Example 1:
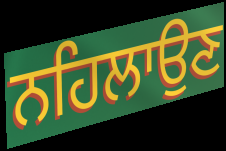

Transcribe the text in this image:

ਨਹਿਲਾਉਣ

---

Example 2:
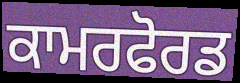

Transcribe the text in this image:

ਕਾਮਰਫੋਰਡ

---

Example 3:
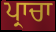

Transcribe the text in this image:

ਪ੍ਰਾਚਾ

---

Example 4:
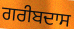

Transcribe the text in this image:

ਗਰੀਬਦਾਸ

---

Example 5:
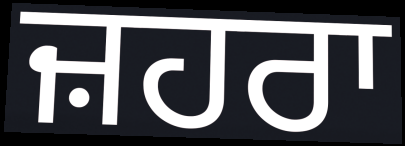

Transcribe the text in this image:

ਜ਼ਹਰਾ